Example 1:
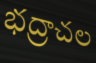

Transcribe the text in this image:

భద్రాచల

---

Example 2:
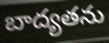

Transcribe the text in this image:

బాద్యతను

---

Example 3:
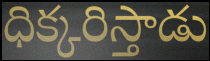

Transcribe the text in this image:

ధిక్కరిస్తాడు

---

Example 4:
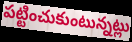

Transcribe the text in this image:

పట్టించుకుంటున్నట్లు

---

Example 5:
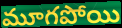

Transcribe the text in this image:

మూగపోయి